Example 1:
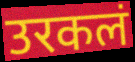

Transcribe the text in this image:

उरकलं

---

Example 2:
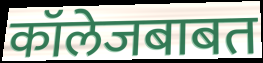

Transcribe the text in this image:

कॉलेजबाबत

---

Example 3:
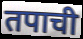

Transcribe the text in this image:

तपाची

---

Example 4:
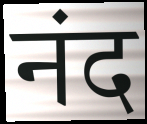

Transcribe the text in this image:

नंद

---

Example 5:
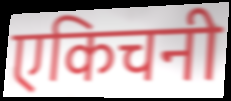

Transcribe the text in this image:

एकिचनी